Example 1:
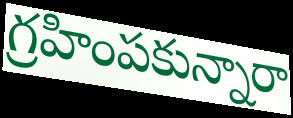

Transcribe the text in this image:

గ్రహింపకున్నారా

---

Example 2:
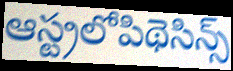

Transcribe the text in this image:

ఆస్ట్రలోపిథెసిన్స్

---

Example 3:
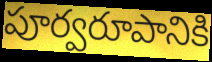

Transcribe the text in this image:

పూర్వరూపానికి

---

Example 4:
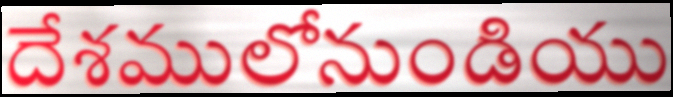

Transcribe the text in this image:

దేశములోనుండియు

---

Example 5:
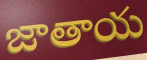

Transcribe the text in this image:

జాతాయ